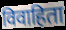
विवाहिता